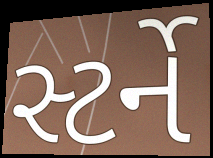
સ્ટર્ને